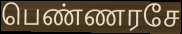
பெண்ணரசே